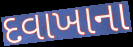
દવાખાના